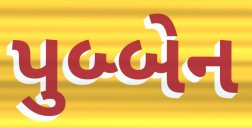
પુબ્બેન